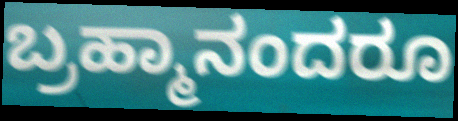
ಬ್ರಹ್ಮಾನಂದರೂ